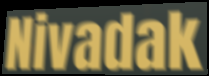
Nivadak